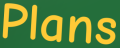
Plans